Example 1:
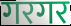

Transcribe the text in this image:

गरगर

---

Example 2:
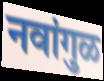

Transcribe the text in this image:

नवांगुळ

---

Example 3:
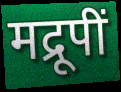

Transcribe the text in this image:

मद्रूपीं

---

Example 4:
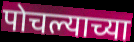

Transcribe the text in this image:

पोचल्याच्या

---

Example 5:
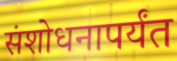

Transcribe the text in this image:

संशोधनापर्यंत